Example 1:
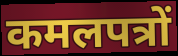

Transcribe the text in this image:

कमलपत्रों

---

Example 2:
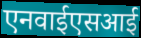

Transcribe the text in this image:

एनवाईएसआई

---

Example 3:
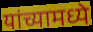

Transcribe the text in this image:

यांच्यामध्ये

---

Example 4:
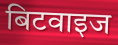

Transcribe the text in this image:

बिटवाइज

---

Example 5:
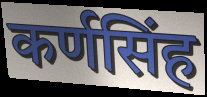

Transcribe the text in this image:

कर्णसिंह